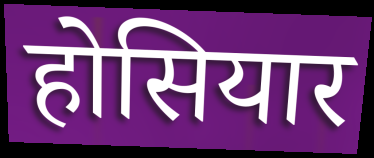
होसियार